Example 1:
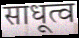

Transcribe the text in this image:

साधूत्व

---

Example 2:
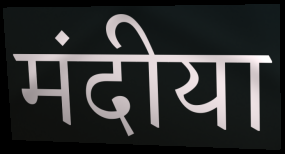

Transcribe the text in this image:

मंदीया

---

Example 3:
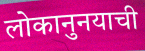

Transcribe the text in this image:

लोकानुनयाची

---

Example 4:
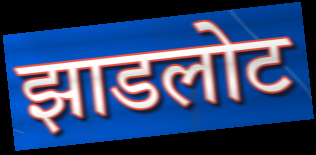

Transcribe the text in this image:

झाडलोट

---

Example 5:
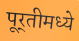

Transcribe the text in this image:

पूर्तीमध्ये